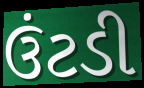
ઉંટડી